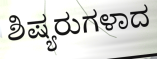
ಶಿಷ್ಯರುಗಳಾದ